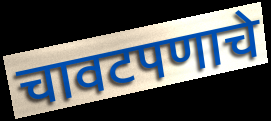
चावटपणाचे